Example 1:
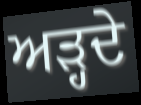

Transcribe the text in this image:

ਅੜ੍ਹਦੇ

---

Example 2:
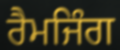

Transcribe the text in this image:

ਰੈਮਜਿੰਗ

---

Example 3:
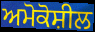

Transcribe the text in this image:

ਅਮੋਕੋਸ਼ੀਲ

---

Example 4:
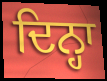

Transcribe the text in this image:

ਦਿਨ੍ਹਾ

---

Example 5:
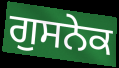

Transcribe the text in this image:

ਗੁਸਨੇਕ